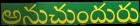
అనుచుందురు